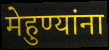
मेहुण्यांना